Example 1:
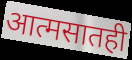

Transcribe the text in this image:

आत्मसातही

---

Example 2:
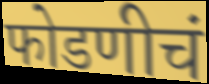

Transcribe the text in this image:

फोडणीचं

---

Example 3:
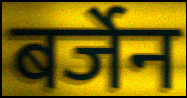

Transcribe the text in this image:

बर्जेन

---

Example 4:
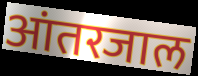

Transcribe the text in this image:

आंतरजाल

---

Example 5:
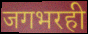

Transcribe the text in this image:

जगभरही